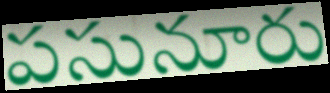
పసునూరు